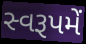
સ્વરૂપમેં